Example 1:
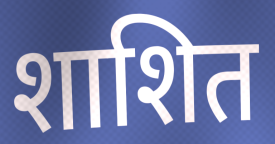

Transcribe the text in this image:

शाशित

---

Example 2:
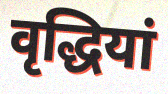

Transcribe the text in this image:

वृद्धियां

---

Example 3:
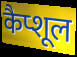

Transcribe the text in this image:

कैप्शूल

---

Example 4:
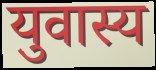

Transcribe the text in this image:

युवास्य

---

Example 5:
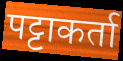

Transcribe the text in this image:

पट्टाकर्ता